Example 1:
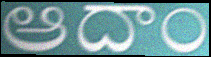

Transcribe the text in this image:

ఆదాం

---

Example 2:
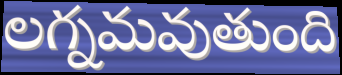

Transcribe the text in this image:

లగ్నమవుతుంది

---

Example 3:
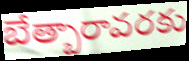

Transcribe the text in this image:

బేత్బారావరకు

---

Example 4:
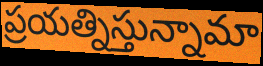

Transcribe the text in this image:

ప్రయత్నిస్తున్నామా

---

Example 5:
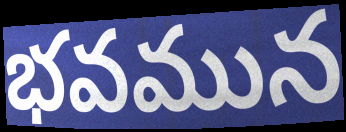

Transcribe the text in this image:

భవమున